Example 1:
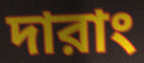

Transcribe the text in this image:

দারাং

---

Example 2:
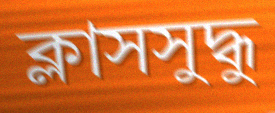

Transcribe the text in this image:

ক্লাসসুদ্ধু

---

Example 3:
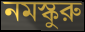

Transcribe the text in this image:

নমস্কুরু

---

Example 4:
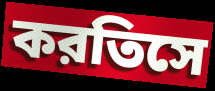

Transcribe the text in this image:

করতিসে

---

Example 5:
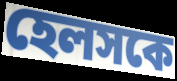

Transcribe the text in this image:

হেলসকে